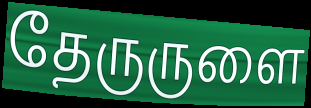
தேருருளை